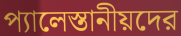
প্যালেস্তানীয়দের